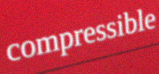
compressible